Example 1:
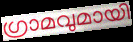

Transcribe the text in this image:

ഗ്രാമവുമായി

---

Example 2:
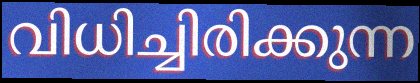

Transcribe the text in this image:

വിധിച്ചിരിക്കുന്ന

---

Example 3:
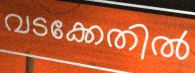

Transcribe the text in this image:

വടക്കേതിൽ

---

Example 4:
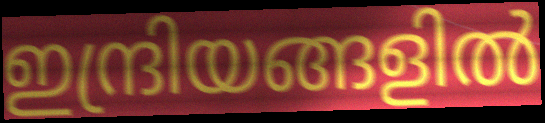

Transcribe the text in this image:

ഇന്ദ്രിയങ്ങളിൽ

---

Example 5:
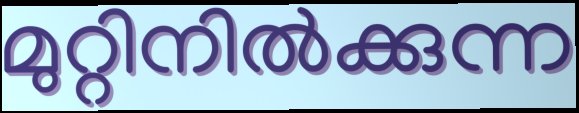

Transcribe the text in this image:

മുറ്റിനിൽക്കുന്ന